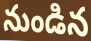
నుండిన